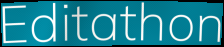
Editathon